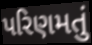
પરિણમતું